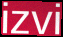
izvi